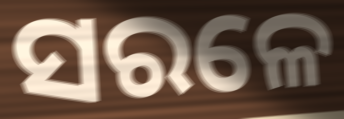
ସରଳେ